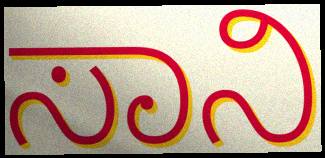
ಸಾನಿ